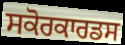
ਸਕੋਰਕਾਰਡਸ